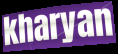
kharyan